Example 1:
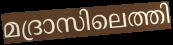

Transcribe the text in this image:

മദ്രാസിലെത്തി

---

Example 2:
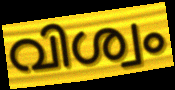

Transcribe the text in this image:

വിശ്വം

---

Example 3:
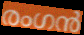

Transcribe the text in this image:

രംഗൻ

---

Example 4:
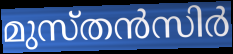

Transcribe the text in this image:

മുസ്തൻസിർ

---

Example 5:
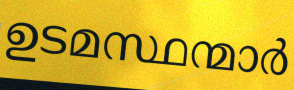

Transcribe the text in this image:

ഉടമസ്ഥന്മാർ